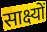
साक्ष्यों